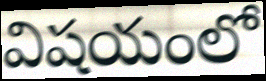
విషయంలో